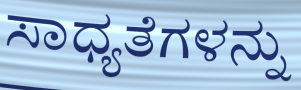
ಸಾಧ್ಯತೆಗಳನ್ನು